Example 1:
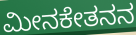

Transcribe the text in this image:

ಮೀನಕೇತನನ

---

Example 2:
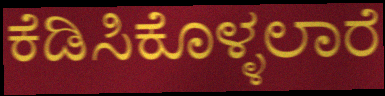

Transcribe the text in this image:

ಕೆಡಿಸಿಕೊಳ್ಳಲಾರೆ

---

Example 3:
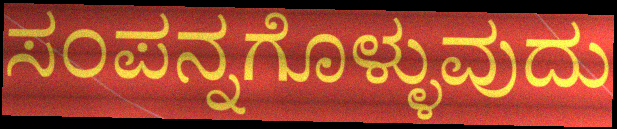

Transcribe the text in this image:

ಸಂಪನ್ನಗೊಳ್ಳುವುದು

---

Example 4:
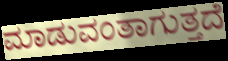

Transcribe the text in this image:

ಮಾಡುವಂತಾಗುತ್ತದೆ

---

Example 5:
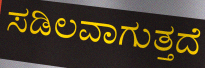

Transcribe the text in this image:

ಸಡಿಲವಾಗುತ್ತದೆ